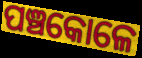
ପଞ୍ଚକୋଳେ